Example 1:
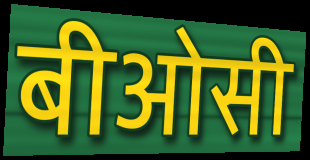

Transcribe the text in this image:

बीओसी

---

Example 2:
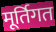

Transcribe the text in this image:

मूर्तिगत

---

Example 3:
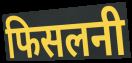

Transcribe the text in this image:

फिसलनी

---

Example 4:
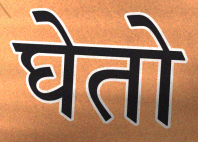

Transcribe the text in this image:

घेतो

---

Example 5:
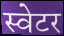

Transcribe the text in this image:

स्वेटर